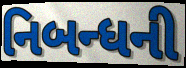
નિબન્ધની